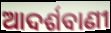
ଆଦର୍ଶବାଣୀ